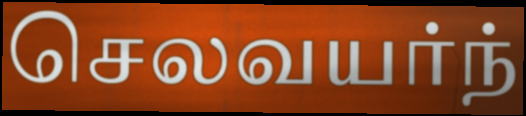
செலவயர்ந்